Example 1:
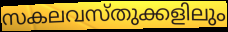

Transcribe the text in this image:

സകലവസ്തുക്കളിലും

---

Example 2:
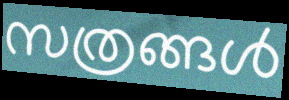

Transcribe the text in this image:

സത്രങ്ങൾ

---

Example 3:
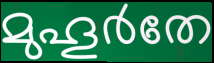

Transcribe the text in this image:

മുഹൂർതേ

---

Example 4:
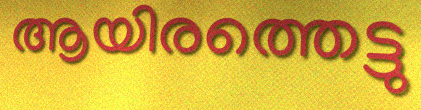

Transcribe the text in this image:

ആയിരത്തെട്ടു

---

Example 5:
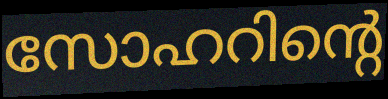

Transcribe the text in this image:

സോഹറിന്റെ